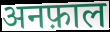
अनफ़ाल